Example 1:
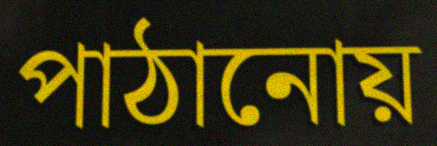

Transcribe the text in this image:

পাঠানোয়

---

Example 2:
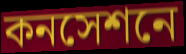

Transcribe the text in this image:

কনসেশনে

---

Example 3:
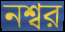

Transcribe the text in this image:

নশ্বর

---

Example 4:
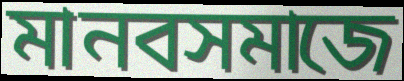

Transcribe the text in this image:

মানবসমাজে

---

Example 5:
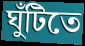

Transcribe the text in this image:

ঘুঁটিতে